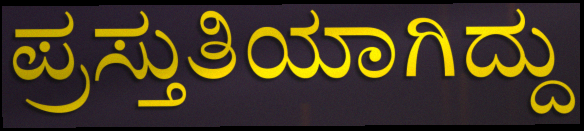
ಪ್ರಸ್ತುತಿಯಾಗಿದ್ದು